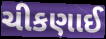
ચીકણાઈ